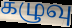
கழுவு